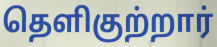
தெளிகுற்றார்